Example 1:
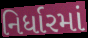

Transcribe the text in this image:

નિર્ધારમાં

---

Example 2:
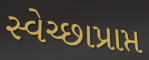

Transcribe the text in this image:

સ્વેચ્છાપ્રાપ્ત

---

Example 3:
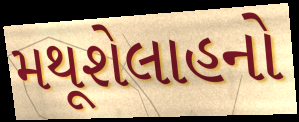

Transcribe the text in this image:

મથૂશેલાહનો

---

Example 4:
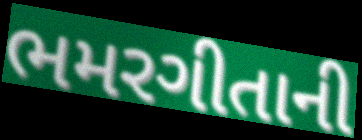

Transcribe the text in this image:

ભમરગીતાની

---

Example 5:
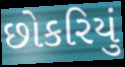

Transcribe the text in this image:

છોકરિયું